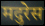
मदुरेस